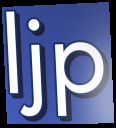
ljp